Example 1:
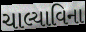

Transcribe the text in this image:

ચાલ્યાવિના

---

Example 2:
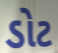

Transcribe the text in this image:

ડોટ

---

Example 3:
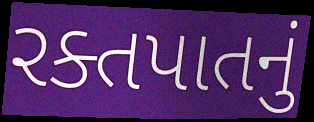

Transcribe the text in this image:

રક્તપાતનું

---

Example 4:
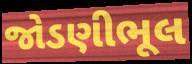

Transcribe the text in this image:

જોડણીભૂલ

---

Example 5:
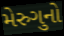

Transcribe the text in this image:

મેરુગુનો